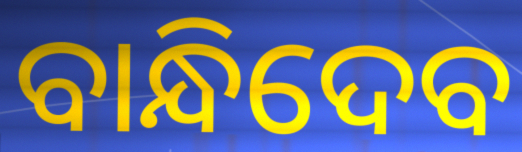
ବାନ୍ଧିଦେବ